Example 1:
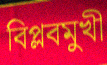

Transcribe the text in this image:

বিপ্লবমুখী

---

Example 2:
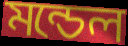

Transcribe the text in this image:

মন্ডেল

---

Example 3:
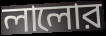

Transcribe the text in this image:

লালোর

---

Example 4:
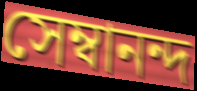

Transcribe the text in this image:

সেম্বানন্দ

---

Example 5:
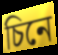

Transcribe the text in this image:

চিনে